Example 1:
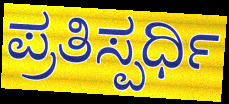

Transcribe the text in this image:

ಪ್ರತಿಸ್ಪರ್ಧಿ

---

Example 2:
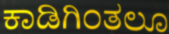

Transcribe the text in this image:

ಕಾಡಿಗಿಂತಲೂ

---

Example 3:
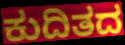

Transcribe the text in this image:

ಕುದಿತದ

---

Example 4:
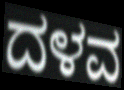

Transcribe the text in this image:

ದಳವ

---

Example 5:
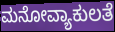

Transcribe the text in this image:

ಮನೋವ್ಯಾಕುಲತೆ